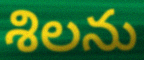
శిలను